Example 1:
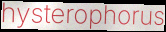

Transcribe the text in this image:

hysterophorus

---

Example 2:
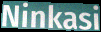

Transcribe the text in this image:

Ninkasi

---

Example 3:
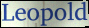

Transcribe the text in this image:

Leopold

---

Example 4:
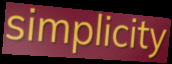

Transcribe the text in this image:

simplicity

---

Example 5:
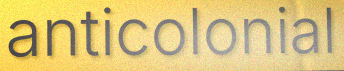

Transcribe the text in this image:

anticolonial